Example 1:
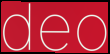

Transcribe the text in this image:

deo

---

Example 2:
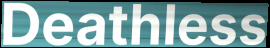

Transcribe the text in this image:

Deathless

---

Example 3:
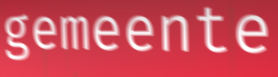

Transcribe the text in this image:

gemeente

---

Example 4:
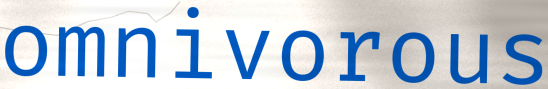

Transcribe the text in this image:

omnivorous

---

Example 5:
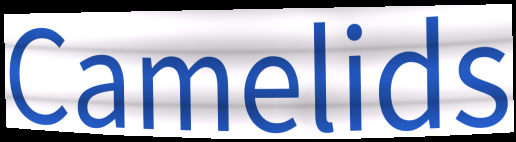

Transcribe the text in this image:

Camelids